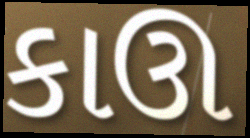
કાઊ